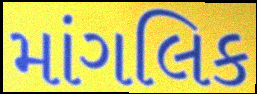
માંગલિક